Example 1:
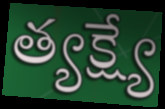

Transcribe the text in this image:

త్యక్ష్యే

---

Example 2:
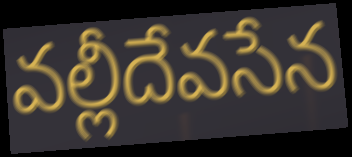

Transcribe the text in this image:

వల్లీదేవసేన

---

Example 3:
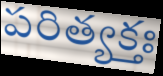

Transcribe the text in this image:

పరిత్యక్తః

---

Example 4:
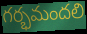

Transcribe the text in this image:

గర్భమందలి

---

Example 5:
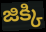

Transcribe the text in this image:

జిక్కి